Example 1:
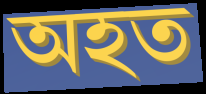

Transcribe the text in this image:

অহত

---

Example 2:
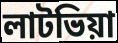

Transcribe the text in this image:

লাটভিয়া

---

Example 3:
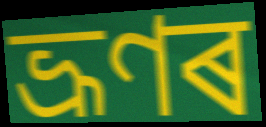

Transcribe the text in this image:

ভ্ৰূণৰ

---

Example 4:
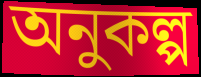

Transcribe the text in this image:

অনুকল্প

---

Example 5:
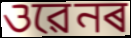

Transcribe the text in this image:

ওৱেনৰ